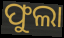
ଫୁଲା